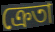
ক্ৰেতা